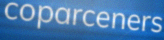
coparceners